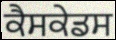
ਕੈਸਕੇਡਸ